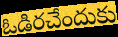
ఓడిరచేందుకు